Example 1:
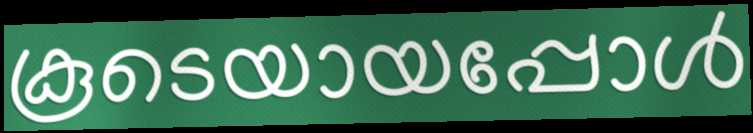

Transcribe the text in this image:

കൂടെയായപ്പോൾ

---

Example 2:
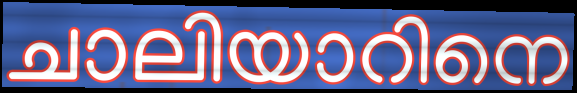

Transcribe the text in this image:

ചാലിയാറിനെ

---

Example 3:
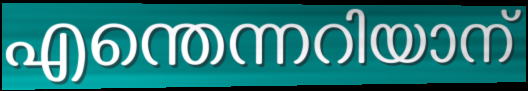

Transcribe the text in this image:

എന്തെന്നറിയാന്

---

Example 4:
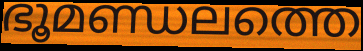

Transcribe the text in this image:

ഭൂമണ്ഡലത്തെ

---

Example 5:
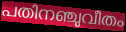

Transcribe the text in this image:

പതിനഞ്ചുവീതം